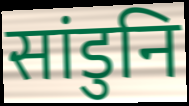
सांडुनि